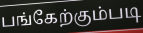
பங்கேற்கும்படி